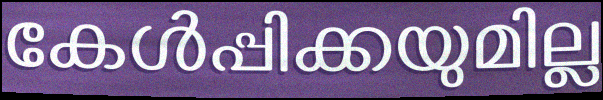
കേൾപ്പിക്കയുമില്ല